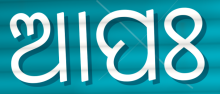
ଆପଃ